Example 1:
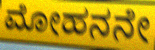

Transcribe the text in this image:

ಮೋಹನನೇ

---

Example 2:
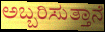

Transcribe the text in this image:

ಅಬ್ಬರಿಸುತ್ತಾನೆ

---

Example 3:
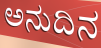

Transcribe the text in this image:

ಅನುದಿನ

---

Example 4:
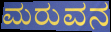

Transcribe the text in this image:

ಮರುವನ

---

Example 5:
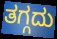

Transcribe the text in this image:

ತಗ್ಗದು